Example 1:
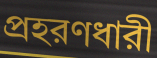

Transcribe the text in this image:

প্রহরণধারী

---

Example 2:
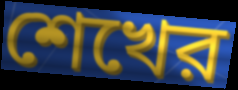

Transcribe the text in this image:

শেখের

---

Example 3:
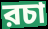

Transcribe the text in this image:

রচা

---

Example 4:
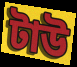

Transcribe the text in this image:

টাউ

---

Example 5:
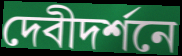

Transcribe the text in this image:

দেবীদর্শনে